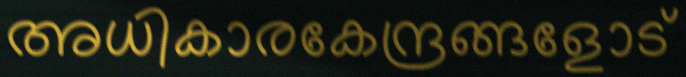
അധികാരകേന്ദ്രങ്ങളോട്